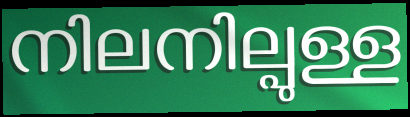
നിലനില്പുള്ള